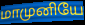
மாமுனியே